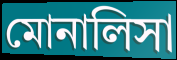
মোনালিসা